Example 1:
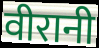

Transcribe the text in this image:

वीरानी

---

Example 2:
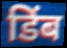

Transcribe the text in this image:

डिंब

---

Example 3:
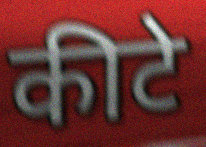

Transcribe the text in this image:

कीटे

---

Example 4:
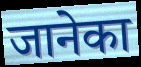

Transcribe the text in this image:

जानेका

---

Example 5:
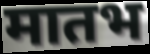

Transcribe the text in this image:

मातभ